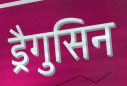
ड्रैगुसिन